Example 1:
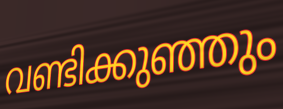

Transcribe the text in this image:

വണ്ടിക്കുഞ്ഞും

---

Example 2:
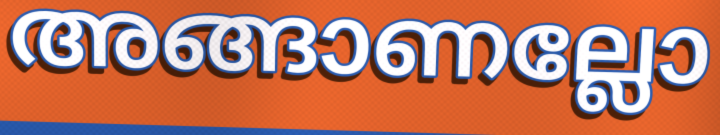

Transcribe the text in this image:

അങ്ങാണല്ലോ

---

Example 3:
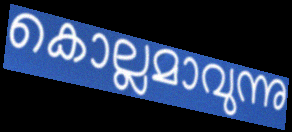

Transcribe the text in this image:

കൊല്ലമാവുന്നു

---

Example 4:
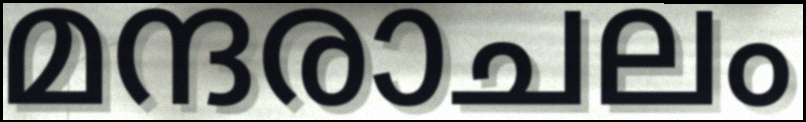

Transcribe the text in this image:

മന്ദരാചലം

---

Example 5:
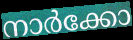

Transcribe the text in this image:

നാർക്കോ